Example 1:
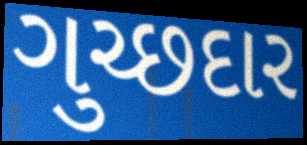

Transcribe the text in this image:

ગુચ્છદાર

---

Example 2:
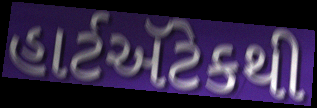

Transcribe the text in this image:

હાર્ટઍટેકથી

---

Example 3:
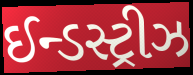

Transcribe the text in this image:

ઈન્ડસ્ટ્રીઝ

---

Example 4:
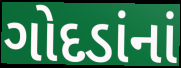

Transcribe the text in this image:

ગોદડાંનાં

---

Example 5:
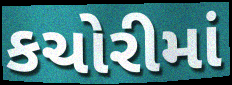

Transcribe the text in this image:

કચોરીમાં